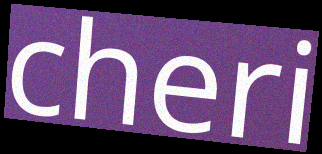
cheri